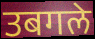
उबगले